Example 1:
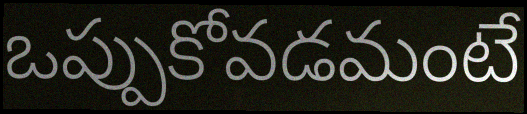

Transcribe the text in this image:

ఒప్పుకోవడమంటే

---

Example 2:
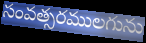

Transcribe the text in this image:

సంవత్సరములగును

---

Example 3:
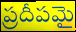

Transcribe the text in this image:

ప్రదీపమై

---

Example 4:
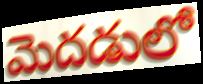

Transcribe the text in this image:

మెదడులో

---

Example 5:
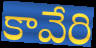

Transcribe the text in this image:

కావేరి